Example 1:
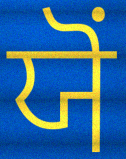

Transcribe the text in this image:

ਯੋਂ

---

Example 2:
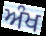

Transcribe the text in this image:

ਅੰਖ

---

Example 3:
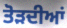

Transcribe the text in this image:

ਤੋੜਦੀਆਂ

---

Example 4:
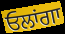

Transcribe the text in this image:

ਓਲਾਂਗਾ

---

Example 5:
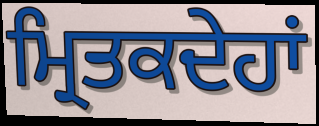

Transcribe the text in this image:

ਮ੍ਰਿਤਕਦੇਹਾਂ